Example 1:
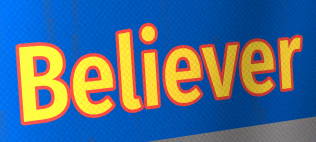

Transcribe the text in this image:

Believer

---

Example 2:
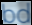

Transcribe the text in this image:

bd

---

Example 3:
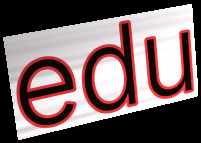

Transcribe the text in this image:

edu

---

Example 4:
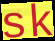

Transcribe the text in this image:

sk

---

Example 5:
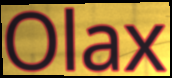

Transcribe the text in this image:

Olax